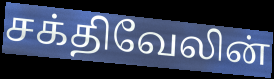
சக்திவேலின்